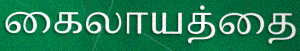
கைலாயத்தை